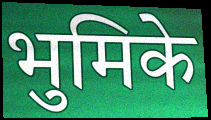
भुमिके